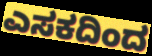
ಎಸಕದಿಂದ